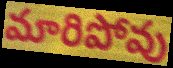
మారిపోవు